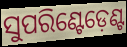
ସୁପରିଣ୍ଟେଡ଼େଣ୍ଟ